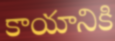
కాయానికి